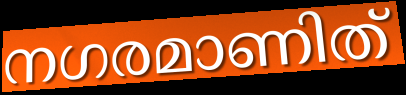
നഗരമാണിത്